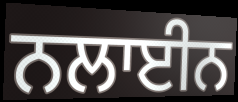
ਨਲਾਈਨ